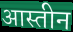
आस्तीन